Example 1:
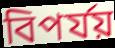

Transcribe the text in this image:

বিপর্যয়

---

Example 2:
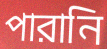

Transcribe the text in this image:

পারানি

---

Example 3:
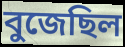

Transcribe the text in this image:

বুজেছিল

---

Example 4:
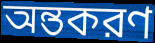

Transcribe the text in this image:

অন্তকরণ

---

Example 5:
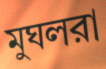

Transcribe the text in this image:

মুঘলরা